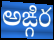
అఙ్గిర